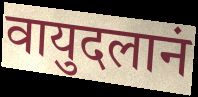
वायुदलानं